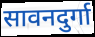
सावनदुर्गा